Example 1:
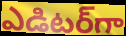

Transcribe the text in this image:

ఎడిటర్‌గా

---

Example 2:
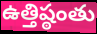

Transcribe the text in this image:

ఉత్తిష్ఠంతు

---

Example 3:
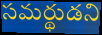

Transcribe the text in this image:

సమర్థుడని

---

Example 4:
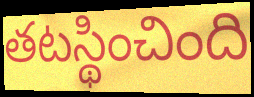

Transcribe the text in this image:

తటస్థించింది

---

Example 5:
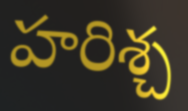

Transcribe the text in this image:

హరిశ్చ